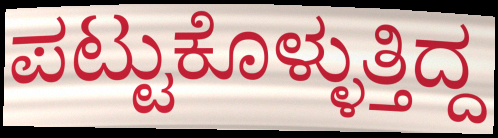
ಪಟ್ಟುಕೊಳ್ಳುತ್ತಿದ್ದ